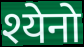
श्येनो